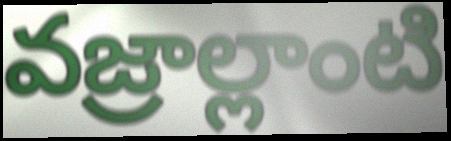
వజ్రాల్లాంటి